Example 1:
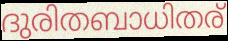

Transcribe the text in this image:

ദുരിതബാധിതര്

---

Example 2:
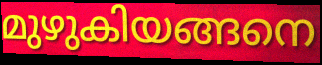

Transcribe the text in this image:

മുഴുകിയങ്ങനെ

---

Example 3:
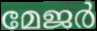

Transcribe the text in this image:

മേജർ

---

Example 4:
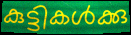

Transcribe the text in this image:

കുട്ടികൾക്കു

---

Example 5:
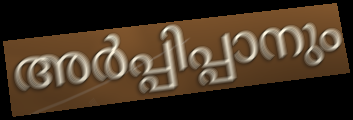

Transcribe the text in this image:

അർപ്പിപ്പാനും